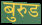
बुरुड